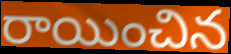
రాయించిన